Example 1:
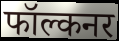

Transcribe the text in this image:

फॉल्कनर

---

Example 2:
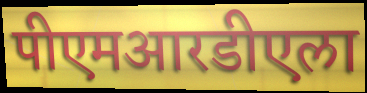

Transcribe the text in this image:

पीएमआरडीएला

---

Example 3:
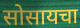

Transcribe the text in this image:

सोसायचा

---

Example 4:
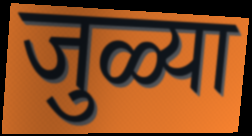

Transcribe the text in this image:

जुळ्या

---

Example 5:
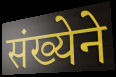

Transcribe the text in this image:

संख्येने